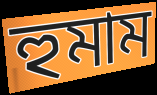
হুমাম